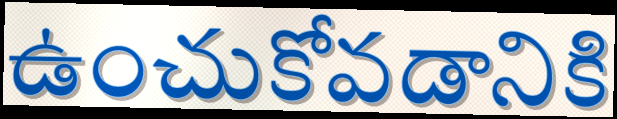
ఉంచుకోవడానికి